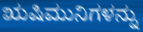
ಋಷಿಮುನಿಗಳನ್ನು